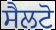
ਸੈਲਟੋ